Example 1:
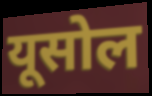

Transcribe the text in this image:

यूसोल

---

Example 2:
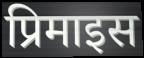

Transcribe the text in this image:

प्रिमाइस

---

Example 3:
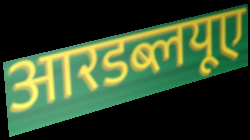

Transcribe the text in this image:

आरडब्लयूए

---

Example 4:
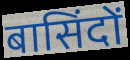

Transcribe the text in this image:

बासिंदों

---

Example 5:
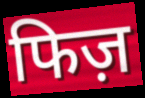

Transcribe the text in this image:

फिज़